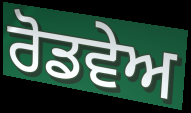
ਰੋਡਵੇਅ